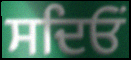
ਸਦਿਓਂ